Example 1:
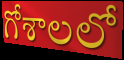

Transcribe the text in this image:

గోశాలలో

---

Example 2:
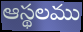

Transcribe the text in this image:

ఆస్థలము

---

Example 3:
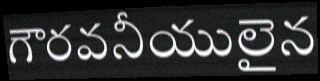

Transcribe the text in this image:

గౌరవనీయులైన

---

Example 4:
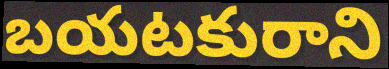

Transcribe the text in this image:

బయటకురాని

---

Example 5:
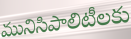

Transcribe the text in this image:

మునిసిపాలిటీలకు